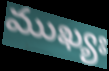
ముఖ్యః